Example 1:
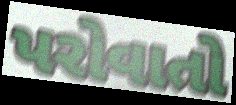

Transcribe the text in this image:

પરોવાતો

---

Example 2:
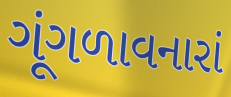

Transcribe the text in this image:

ગૂંગળાવનારાં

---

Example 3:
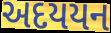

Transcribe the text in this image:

અદયયન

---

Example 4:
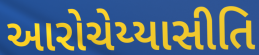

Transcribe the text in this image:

આરોચેય્યાસીતિ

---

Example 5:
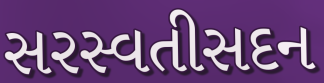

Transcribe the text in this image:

સરસ્વતીસદન